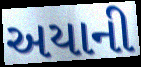
અયાની